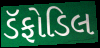
ડૅફોડિલ